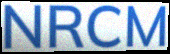
NRCM